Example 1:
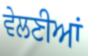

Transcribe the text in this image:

ਵੇਲਣੀਆਂ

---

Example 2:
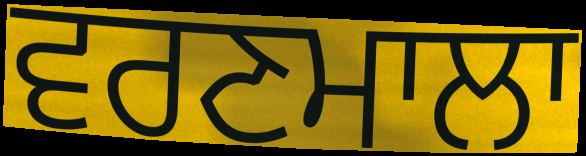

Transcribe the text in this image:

ਵਰਣਮਾਲਾ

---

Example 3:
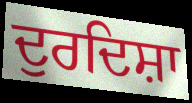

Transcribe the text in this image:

ਦੁਰਦਿਸ਼ਾ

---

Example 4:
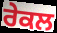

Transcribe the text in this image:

ਰੇਕਲ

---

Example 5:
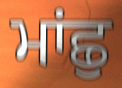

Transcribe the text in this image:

ਮਾਂਛੁ